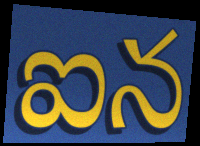
ఐన